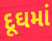
દૂઘમાં